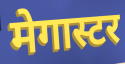
मेगास्टर